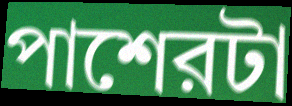
পাশেরটা